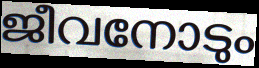
ജീവനോടും